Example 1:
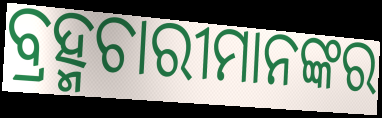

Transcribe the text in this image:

ବ୍ରହ୍ମଚାରୀମାନଙ୍କର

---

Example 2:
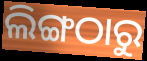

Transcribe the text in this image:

ଲିଙ୍ଗଠାରୁ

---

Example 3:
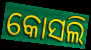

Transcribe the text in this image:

କୋସଲି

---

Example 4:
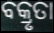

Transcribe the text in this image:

ବକ୍ରୃତା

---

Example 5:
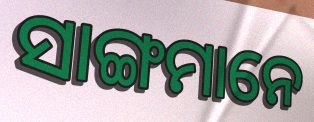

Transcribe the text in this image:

ସାଙ୍ଗମାନେ